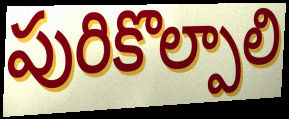
పురికొల్పాలి